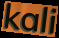
kali